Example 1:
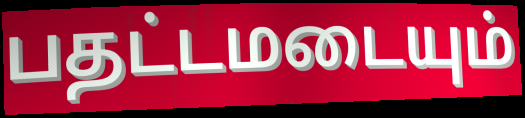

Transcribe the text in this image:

பதட்டமடையும்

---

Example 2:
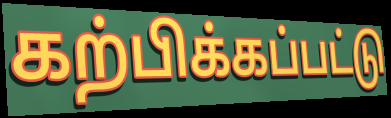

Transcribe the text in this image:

கற்பிக்கப்பட்டு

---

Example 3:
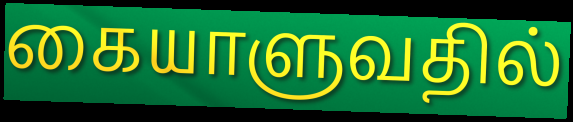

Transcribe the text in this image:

கையாளுவதில்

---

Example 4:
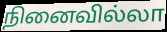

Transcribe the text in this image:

நினைவில்லா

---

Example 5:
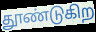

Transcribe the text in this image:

தூண்டுகிற